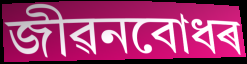
জীৱনবোধৰ